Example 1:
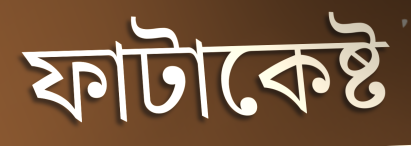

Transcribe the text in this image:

ফাটাকেষ্ট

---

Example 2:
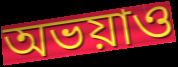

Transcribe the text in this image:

অভয়াও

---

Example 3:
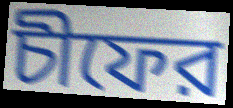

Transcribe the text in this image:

চীফের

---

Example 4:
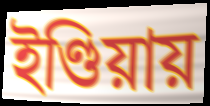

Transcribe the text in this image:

ইণ্ডিয়ায়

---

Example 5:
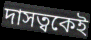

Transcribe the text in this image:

দাসত্বকেই